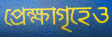
প্রেক্ষাগৃহেও